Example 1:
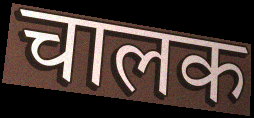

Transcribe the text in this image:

चालक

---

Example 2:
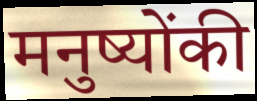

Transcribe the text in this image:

मनुष्योंकी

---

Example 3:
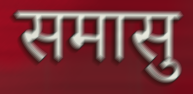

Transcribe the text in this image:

समासु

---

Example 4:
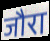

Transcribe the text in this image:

जौरा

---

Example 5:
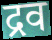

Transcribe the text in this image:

द्रव